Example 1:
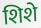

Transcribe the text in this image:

शिशे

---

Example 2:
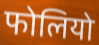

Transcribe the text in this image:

फोलियो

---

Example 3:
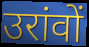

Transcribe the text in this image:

उरांवों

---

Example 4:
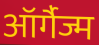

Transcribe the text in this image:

ऑर्गैज्म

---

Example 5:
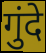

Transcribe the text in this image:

गुंदे